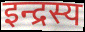
इन्द्रस्य